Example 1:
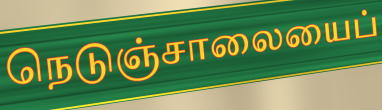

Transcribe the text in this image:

நெடுஞ்சாலையைப்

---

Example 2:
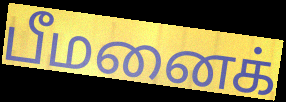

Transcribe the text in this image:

பீமனைக்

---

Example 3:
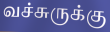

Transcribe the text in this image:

வச்சுருக்கு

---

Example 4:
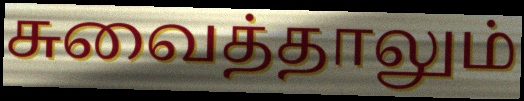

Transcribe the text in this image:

சுவைத்தாலும்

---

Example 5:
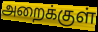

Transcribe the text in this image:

அறைக்குள்